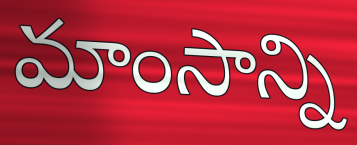
మాంసాన్ని